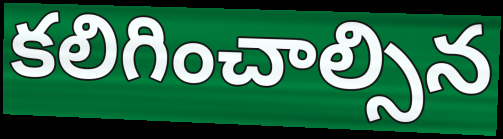
కలిగించాల్సిన